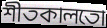
শীতকালতো